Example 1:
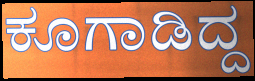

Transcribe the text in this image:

ಕೂಗಾಡಿದ್ದ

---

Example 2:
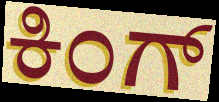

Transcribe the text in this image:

ಕಿಂಗ್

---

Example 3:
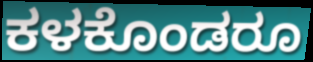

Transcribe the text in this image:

ಕಳಕೊಂಡರೂ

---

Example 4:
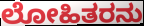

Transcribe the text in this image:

ಲೋಹಿತರನು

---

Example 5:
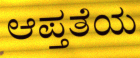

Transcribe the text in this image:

ಆಪ್ತತೆಯ